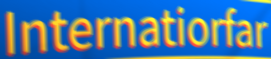
Internatiorfar